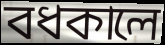
বধকালে